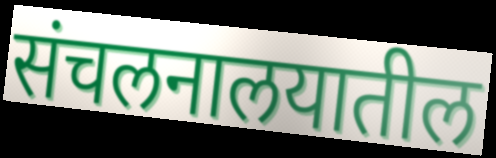
संचलनालयातील